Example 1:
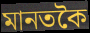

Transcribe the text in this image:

মানতকৈ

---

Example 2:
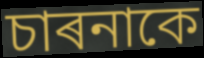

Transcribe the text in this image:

চাৰনাকে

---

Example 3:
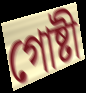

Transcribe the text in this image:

গোষ্টী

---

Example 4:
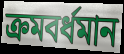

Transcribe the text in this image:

ক্ৰমবৰ্ধমান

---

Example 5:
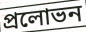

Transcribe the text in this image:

প্ৰলোভন